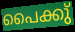
പൈക്കു്